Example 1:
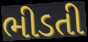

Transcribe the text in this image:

ભીડતી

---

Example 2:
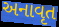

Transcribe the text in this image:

અનાવૃત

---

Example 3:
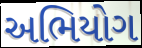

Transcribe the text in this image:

અભિયોગ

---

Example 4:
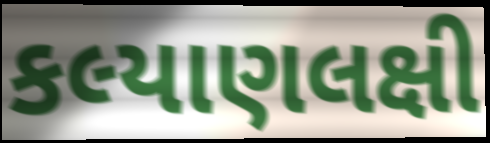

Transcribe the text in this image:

કલ્યાણલક્ષી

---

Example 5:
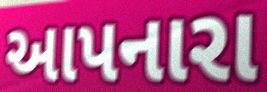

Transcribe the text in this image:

આપનારા